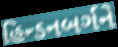
હિન્ડનબર્ગને